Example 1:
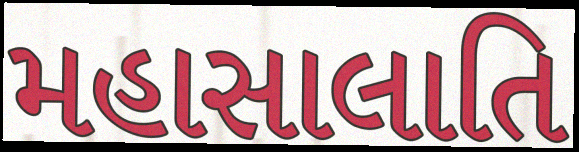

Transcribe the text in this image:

મહાસાલાતિ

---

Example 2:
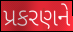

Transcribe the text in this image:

પ્રકરણને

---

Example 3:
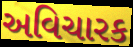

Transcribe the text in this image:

અવિચારક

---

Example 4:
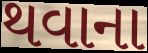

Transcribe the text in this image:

થવાના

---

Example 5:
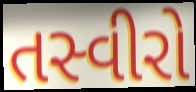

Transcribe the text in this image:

તસ્વીરો